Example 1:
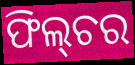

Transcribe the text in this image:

ଫିଲ୍‌ଚର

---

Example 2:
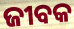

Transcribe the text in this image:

ଜୀବକ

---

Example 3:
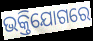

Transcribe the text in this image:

ଭକ୍ତିଯୋଗରେ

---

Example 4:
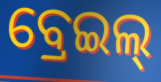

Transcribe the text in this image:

ବ୍ରେଇଲ୍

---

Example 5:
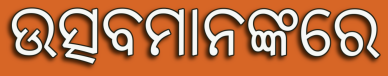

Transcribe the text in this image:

ଉତ୍ସବମାନଙ୍କରେ